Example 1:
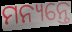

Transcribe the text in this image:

ମନ୍ୟନ୍ତେ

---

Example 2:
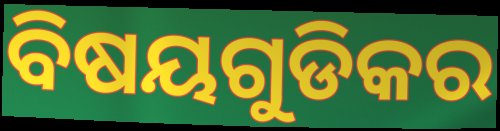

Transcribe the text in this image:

ବିଷୟଗୁଡିକର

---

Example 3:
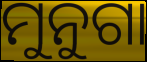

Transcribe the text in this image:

ମୁନୁଗା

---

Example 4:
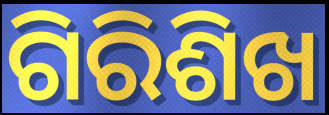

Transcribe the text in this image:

ଗିରିଶିଖ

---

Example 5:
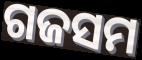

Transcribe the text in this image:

ଗଜସମ